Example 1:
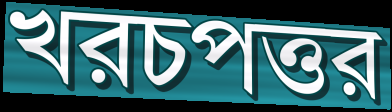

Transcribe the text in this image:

খরচপত্তর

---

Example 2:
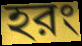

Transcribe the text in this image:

হরং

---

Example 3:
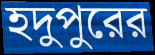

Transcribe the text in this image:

হদুপুরের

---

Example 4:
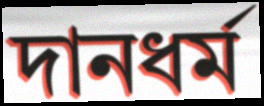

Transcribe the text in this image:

দানধর্ম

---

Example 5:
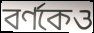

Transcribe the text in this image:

বর্ণকেও